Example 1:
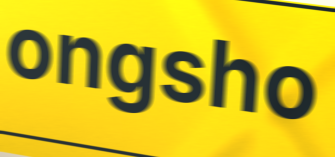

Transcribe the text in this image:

ongsho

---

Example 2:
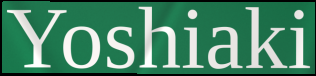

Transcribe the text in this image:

Yoshiaki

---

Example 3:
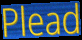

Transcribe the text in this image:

Plead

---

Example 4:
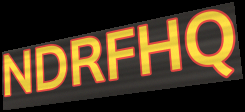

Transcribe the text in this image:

NDRFHQ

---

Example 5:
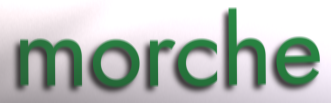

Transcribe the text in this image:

morche